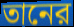
তানের